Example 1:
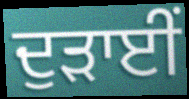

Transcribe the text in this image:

ਦੁੜਾਈਂ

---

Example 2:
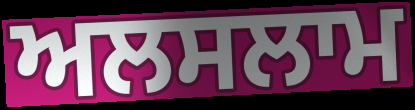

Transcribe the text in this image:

ਅਲਸਲਾਮ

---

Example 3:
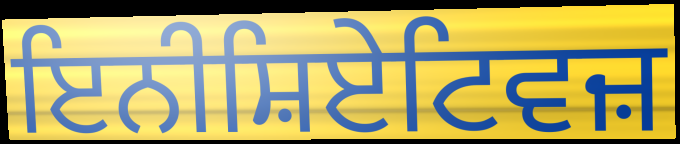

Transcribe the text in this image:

ਇਨੀਸ਼ਿਏਟਿਵਜ਼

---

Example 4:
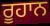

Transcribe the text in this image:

ਰੂਹਾਨ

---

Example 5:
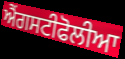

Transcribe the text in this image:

ਐਂਗਸਟੀਫੋਲੀਆ